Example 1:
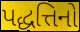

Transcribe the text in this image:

પદ્ધત્તિનો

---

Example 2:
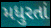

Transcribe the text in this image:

મધુરતાં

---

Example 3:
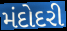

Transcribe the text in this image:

મંદોદરી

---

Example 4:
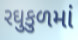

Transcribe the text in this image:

રઘુકુળમાં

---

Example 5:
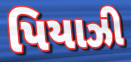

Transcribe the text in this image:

પિયાઝી